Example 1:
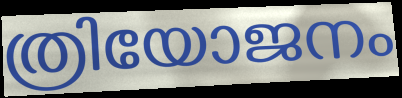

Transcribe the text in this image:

ത്രിയോജനം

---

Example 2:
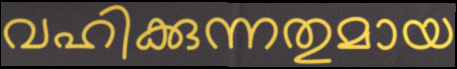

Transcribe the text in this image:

വഹിക്കുന്നതുമായ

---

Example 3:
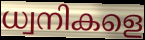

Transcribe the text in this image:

ധ്വനികളെ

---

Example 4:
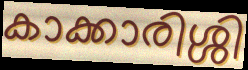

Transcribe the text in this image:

കാക്കാരിശ്ശി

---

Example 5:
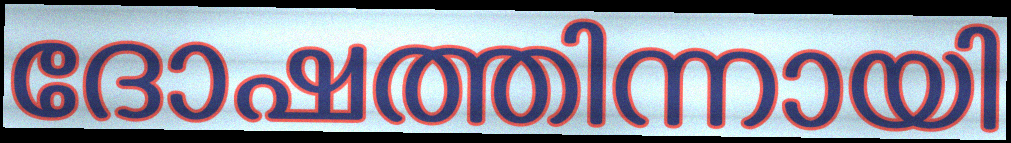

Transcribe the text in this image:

ദോഷത്തിന്നായി